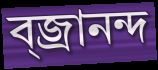
ব্জ্রানন্দ